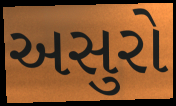
અસુરો